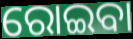
ରୋଇବା